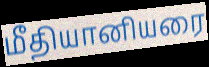
மீதியானியரை